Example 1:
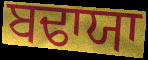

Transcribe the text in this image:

ਬਢਾਯਾ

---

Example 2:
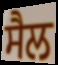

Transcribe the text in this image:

ਸੈਲ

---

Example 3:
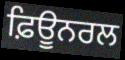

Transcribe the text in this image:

ਫ਼ਿਊਨਰਲ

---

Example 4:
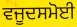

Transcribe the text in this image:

ਵਜੂਦਸਮੋਈ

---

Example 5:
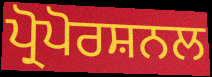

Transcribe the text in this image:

ਪ੍ਰੋਪੋਰਸ਼ਨਲ